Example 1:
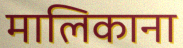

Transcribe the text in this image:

मालिकाना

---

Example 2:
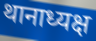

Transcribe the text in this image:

थानाध्यक्ष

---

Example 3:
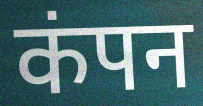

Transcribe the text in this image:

कंपन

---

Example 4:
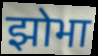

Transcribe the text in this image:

झोभा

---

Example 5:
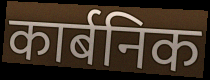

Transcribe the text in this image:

कार्बनिक